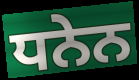
ਧਨੇਨ